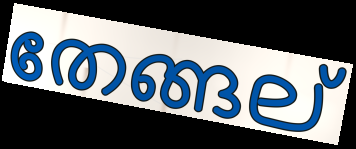
തേങ്ങല്